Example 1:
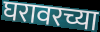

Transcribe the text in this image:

घरावरच्या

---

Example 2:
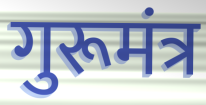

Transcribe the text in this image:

गुरूमंत्र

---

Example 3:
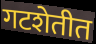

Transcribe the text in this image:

गटशेतीत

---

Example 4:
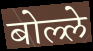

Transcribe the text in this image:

बोल्ले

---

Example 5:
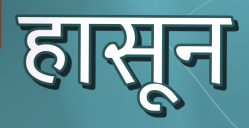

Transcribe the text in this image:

हासून